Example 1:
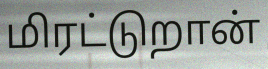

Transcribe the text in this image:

மிரட்டுறான்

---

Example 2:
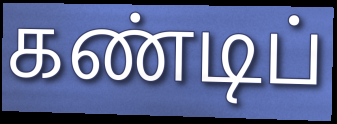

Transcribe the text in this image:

கண்டிப்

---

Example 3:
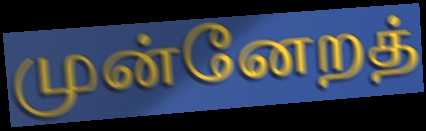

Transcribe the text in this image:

முன்னேறத்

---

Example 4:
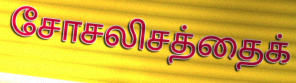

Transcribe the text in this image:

சோசலிசத்தைக்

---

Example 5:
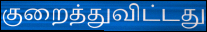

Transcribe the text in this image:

குறைத்துவிட்டது